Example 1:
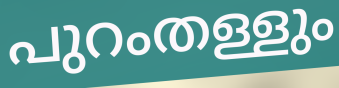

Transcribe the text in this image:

പുറംതള്ളും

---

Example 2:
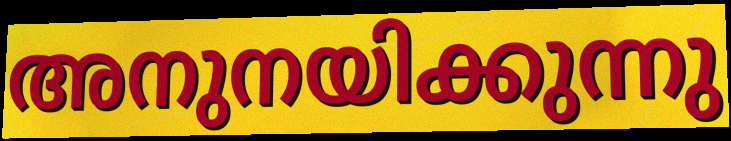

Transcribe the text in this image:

അനുനയിക്കുന്നു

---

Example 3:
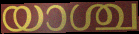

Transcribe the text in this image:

യാശ്ച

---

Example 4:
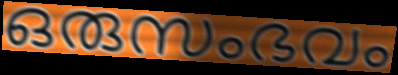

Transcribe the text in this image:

ഒരുസംഭവം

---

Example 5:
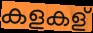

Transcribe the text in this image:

കളകള്